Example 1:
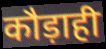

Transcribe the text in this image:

कौड़ाही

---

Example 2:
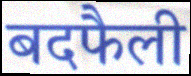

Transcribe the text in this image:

बदफैली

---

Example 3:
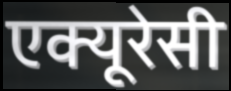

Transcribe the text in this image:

एक्यूरेसी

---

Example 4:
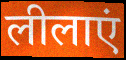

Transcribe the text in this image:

लीलाएं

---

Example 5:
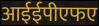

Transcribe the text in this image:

आईईपीएफए